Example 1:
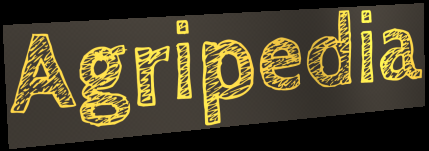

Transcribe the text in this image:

Agripedia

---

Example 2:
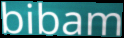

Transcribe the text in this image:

bibam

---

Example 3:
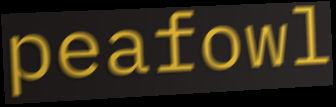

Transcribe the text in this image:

peafowl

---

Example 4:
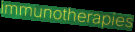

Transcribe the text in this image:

immunotherapies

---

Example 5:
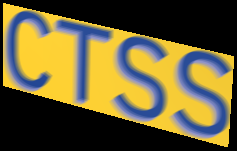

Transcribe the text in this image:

CTSS